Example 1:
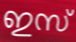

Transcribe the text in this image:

ഇസ്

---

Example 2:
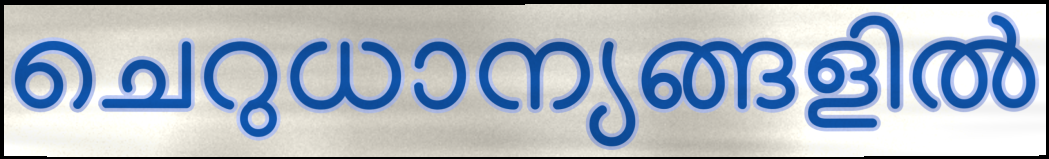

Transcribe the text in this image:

ചെറുധാന്യങ്ങളിൽ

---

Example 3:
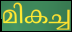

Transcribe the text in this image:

മികച്ച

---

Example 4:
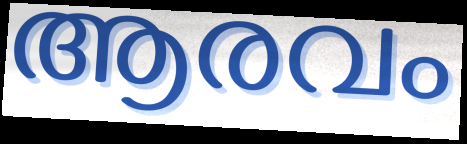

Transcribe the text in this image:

ആരവം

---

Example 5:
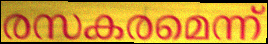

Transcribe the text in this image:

രസകരമെന്ന്